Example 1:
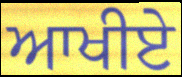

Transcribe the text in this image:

ਆਖੀਏ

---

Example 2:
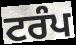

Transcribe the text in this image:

ਟਰੰਪ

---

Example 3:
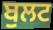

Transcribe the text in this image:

ਬੁਲਟ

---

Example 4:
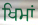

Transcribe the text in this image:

ਖਿਮਾਂ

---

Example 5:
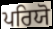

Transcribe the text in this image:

ਪਰਿਯੋ